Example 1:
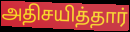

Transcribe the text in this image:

அதிசயித்தார்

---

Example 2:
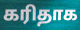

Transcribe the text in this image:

கரிதாக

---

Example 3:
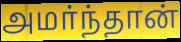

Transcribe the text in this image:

அமர்ந்தான்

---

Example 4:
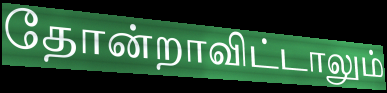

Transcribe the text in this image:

தோன்றாவிட்டாலும்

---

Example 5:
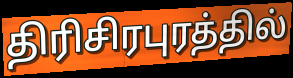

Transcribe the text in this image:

திரிசிரபுரத்தில்